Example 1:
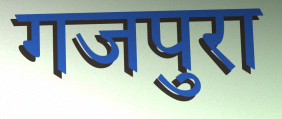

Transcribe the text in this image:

गजपुरा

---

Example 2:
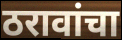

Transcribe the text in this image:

ठरावांचा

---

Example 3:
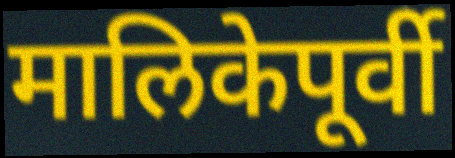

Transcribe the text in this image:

मालिकेपूर्वी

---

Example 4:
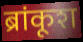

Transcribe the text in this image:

ब्रांकूश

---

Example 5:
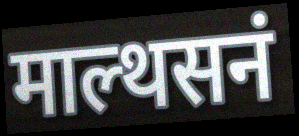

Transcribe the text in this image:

माल्थसनं